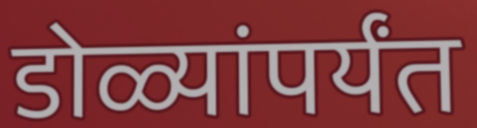
डोळ्यांपर्यंत